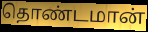
தொண்டமான்